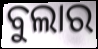
ବୁଲାର